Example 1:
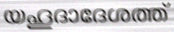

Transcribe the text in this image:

യഹൂദാദേശത്ത്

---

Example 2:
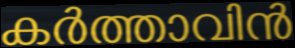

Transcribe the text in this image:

കർത്താവിൻ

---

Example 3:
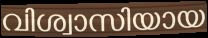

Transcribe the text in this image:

വിശ്വാസിയായ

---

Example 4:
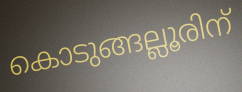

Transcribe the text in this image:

കൊടുങ്ങല്ലൂരിന്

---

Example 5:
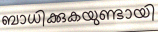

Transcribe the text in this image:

ബാധിക്കുകയുണ്ടായി